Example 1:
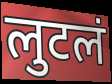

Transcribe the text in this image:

लुटलं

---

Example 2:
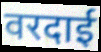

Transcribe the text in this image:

वरदाई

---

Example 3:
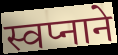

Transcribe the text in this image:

स्वप्नाने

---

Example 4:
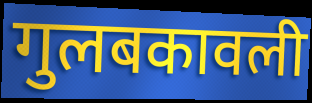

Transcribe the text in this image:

गुलबकावली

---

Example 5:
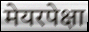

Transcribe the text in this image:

मेयरपेक्षा